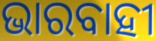
ଭାରବାହୀ